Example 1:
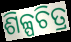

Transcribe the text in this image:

ଶିଳ୍ପଚିତ୍ର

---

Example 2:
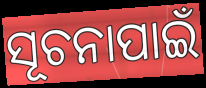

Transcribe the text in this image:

ସୂଚନାପାଇଁ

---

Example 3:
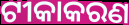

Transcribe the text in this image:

ଟୀକାକରଣ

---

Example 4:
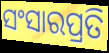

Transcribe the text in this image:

ସଂସାରପ୍ରତି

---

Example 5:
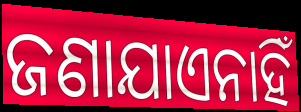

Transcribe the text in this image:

ଜଣାଯାଏନାହିଁ